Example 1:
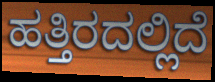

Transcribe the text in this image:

ಹತ್ತಿರದಲ್ಲಿದೆ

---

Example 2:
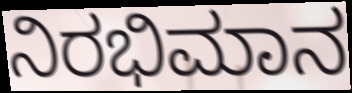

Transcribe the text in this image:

ನಿರಭಿಮಾನ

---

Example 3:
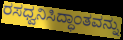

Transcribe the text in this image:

ರಸಧ್ವನಿಸಿದ್ಧಾಂತವನ್ನು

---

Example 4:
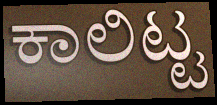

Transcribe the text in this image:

ಕಾಲಿಟ್ಟ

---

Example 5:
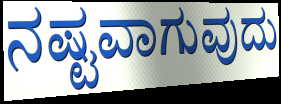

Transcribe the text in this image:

ನಷ್ಟವಾಗುವುದು